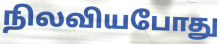
நிலவியபோது